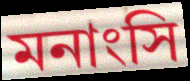
মনাংসি